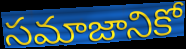
సమాజానికో